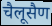
चैलूसैण